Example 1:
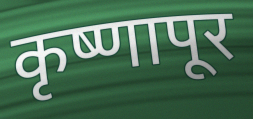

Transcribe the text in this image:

कृष्णापूर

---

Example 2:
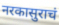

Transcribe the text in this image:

नरकासुराचं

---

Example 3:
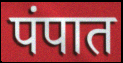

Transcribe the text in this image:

पंपात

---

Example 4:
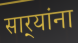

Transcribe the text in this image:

सार्यांना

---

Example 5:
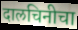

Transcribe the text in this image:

दालचिनीचा